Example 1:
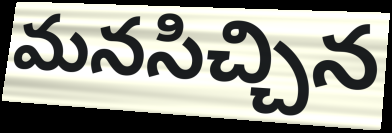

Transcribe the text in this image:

మనసిచ్చిన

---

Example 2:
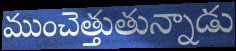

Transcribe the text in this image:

ముంచెత్తుతున్నాడు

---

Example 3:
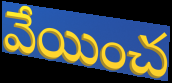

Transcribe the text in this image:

వేయించ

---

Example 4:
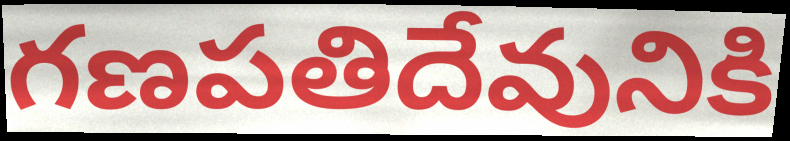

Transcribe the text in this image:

గణపతిదేవునికి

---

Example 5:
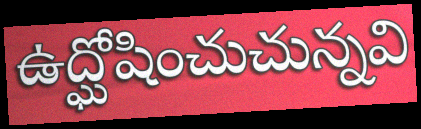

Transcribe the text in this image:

ఉద్ఘోషించుచున్నవి